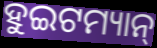
ହୁଇଟମ୍ୟାନ୍